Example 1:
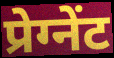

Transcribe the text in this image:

प्रेग्नेंट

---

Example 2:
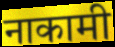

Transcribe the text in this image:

नाकामी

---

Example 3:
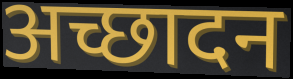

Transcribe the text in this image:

अच्छादन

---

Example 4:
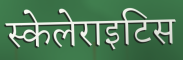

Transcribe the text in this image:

स्केलेराइटिस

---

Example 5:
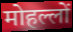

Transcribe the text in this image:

मोहल्लों